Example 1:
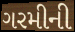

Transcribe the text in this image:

ગરમીની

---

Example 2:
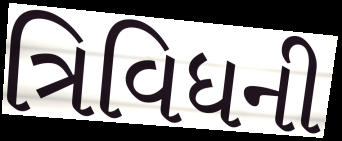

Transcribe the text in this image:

ત્રિવિધની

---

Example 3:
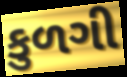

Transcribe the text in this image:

કુળગી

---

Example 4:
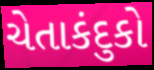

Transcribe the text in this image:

ચેતાકંદુકો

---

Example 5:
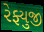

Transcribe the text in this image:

રેફ્યુજી